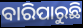
ବାରିପାରୁଛି